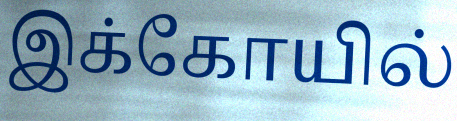
இக்கோயில்